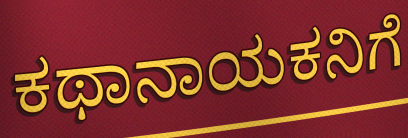
ಕಥಾನಾಯಕನಿಗೆ